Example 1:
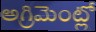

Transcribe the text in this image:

అగ్రిమెంట్లో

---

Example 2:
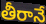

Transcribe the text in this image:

తీరానే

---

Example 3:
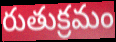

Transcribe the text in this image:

రుతుక్రమం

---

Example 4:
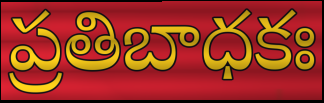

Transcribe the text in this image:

ప్రతిబాధకః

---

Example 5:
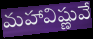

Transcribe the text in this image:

మహావిష్ణువే